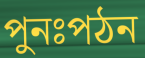
পুনঃপঠন